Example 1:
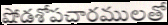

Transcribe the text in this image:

షోడశోపచారములతో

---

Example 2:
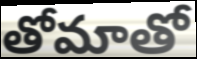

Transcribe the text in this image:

తోమాతో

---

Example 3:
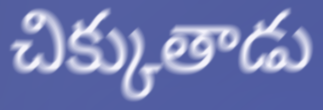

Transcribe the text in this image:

చిక్కుతాడు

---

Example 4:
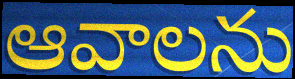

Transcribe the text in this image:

ఆవాలను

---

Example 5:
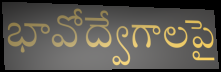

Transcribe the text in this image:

భావోద్వేగాలపై